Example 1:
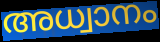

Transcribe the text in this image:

അധ്വാനം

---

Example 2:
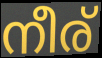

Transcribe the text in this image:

നീര്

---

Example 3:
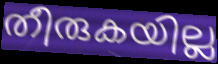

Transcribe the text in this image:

തീരുകയില്ല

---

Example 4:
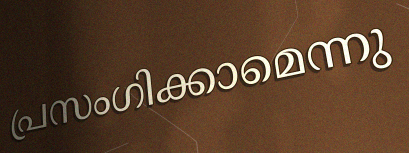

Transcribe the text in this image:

പ്രസംഗിക്കാമെന്നു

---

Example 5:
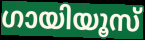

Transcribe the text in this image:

ഗായിയൂസ്